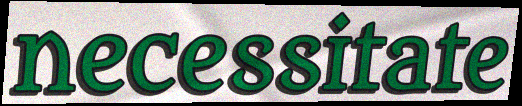
necessitate